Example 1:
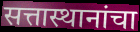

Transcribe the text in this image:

सत्तास्थानांचा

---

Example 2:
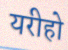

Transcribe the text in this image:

यरीहो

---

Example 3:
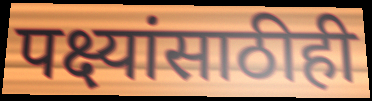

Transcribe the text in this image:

पक्ष्यांसाठीही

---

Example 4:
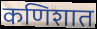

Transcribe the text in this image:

कणिशात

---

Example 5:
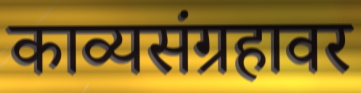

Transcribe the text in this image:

काव्यसंग्रहावर